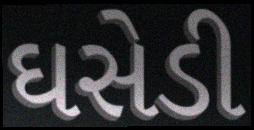
ઘસેડી